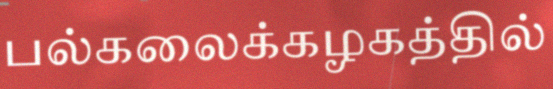
பல்கலைக்கழகத்தில்